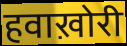
हवाख़ोरी